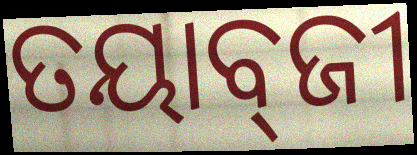
ତୟାବ୍‌ଜୀ